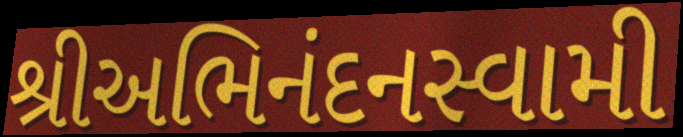
શ્રીઅભિનંદનસ્વામી